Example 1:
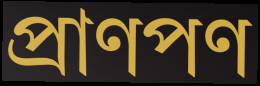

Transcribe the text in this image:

প্রাণপণ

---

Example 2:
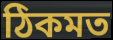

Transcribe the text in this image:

ঠিকমত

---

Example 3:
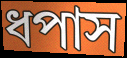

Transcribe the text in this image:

ধপাস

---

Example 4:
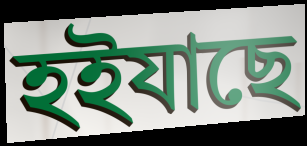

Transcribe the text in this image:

হইযাছে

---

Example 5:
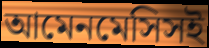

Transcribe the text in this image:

আমেনমেসিসই